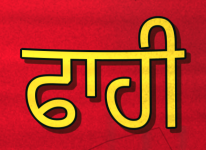
ਫਾਹੀ